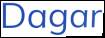
Dagar